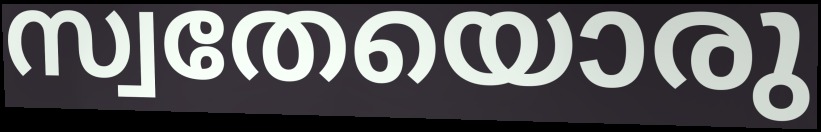
സ്വതേയൊരു